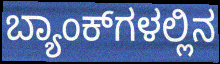
ಬ್ಯಾಂಕ್‌ಗಳಲ್ಲಿನ